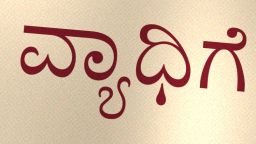
ವ್ಯಾಧಿಗೆ